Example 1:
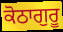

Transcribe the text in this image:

ਕੋਠਾਗੁਰੂ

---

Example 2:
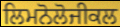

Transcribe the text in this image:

ਲਿਮਨੋਲੋਜੀਕਲ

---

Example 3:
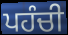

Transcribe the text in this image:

ਪਹੰਚੀ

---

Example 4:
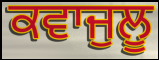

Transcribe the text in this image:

ਕਵਾਜੁਲੂ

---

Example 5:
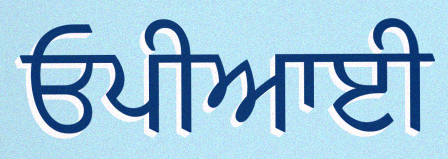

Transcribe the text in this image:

ਓਪੀਆਈ